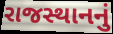
રાજસ્થાનનું